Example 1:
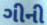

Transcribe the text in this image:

ગીની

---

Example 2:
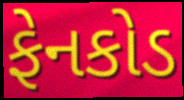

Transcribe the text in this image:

ફેનકોડ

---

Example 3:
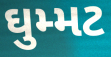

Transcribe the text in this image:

ઘુમ્મટ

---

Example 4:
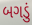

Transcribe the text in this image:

બગડું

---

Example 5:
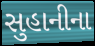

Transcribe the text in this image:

સુહાનીના